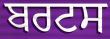
ਬਰਟਸ